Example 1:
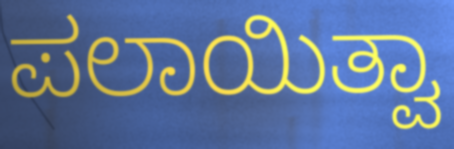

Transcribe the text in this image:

ಪಲಾಯಿತ್ವಾ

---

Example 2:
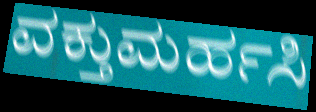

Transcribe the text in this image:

ವಕ್ತುಮರ್ಹಸಿ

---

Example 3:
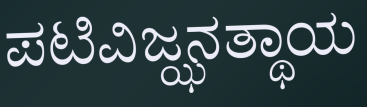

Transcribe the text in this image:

ಪಟಿವಿಜ್ಝನತ್ಥಾಯ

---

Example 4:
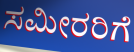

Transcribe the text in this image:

ಸಮೀರರಿಗೆ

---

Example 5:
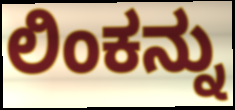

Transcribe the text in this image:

ಲಿಂಕನ್ನು